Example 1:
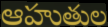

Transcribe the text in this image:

ఆహుతుల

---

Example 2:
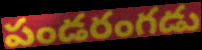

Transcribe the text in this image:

పండరంగడు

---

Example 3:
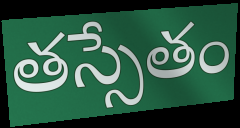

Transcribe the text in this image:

తస్సేతం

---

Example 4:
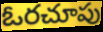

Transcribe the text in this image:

ఓరచూపు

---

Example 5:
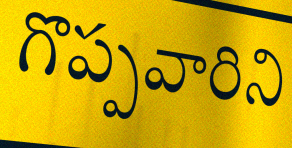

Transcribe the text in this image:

గొప్పవారిని